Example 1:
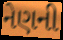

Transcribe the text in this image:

નેણની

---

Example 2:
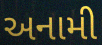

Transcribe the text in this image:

અનામી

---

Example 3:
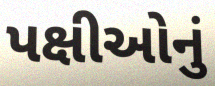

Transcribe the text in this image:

પક્ષીઓનું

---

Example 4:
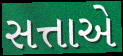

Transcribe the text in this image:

સત્તાએ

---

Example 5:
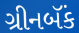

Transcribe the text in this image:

ગ્રીનબૅંક